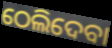
ଠେଲିଦେବା